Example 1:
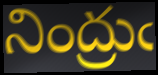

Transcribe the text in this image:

నింద్రుఁ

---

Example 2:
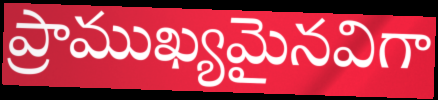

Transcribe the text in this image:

ప్రాముఖ్యమైనవిగా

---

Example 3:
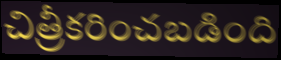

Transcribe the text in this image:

చిత్రీకరించబడింది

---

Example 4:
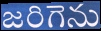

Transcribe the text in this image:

జరిగెను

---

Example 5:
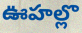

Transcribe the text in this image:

ఊహల్లొ